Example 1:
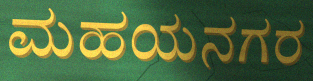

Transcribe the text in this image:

ಮಹಯನಗರ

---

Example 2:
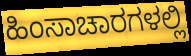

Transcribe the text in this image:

ಹಿಂಸಾಚಾರಗಳಲ್ಲಿ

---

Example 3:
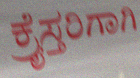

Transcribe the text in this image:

ಕ್ರೈಸ್ತರಿಗಾಗಿ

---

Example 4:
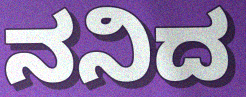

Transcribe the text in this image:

ನನಿದ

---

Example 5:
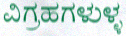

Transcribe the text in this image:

ವಿಗ್ರಹಗಳುಳ್ಳ